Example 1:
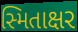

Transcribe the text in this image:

સ્મિતાક્ષર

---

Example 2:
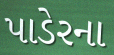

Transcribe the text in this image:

પાડેરના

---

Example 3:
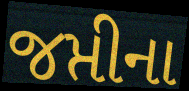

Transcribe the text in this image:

જપ્તીના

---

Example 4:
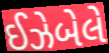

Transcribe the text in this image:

ઈઝેબેલે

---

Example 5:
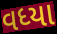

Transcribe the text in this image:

વધ્યા